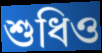
শুধিও